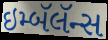
ઇમ્બૅલૅન્સ